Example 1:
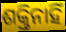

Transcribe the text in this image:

ଶକ୍ତିନାହିଁ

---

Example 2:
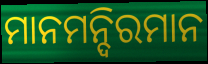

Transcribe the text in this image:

ମାନମନ୍ଦିରମାନ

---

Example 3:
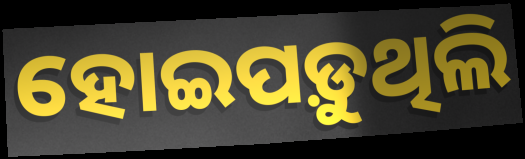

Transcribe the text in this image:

ହୋଇପଡ଼ୁଥିଲି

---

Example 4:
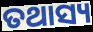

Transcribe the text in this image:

ତଥାସ୍ୟ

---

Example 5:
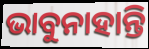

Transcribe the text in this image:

ଭାବୁନାହାନ୍ତି